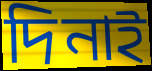
দিনাই